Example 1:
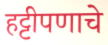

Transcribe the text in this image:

हट्टीपणाचे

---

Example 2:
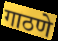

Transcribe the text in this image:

गाठणे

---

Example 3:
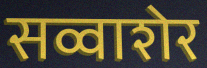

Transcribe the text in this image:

सव्वाशेर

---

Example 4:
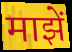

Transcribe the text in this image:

माझें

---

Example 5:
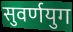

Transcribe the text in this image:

सुवर्णयुग